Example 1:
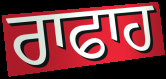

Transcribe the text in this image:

ਰਾਫਾਹ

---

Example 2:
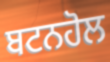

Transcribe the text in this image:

ਬਟਨਹੋਲ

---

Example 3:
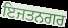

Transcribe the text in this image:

ਇਜਤਨਗਰ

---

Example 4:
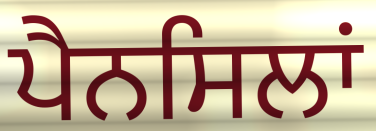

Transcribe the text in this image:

ਪੈਨਸਿਲਾਂ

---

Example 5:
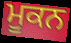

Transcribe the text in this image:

ਮੂਕਨ